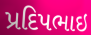
પ્રદિપભાઇ